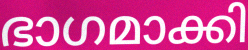
ഭാഗമാക്കി